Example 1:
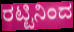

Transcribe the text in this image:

ರಟ್ಟಿನಿಂದ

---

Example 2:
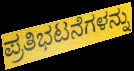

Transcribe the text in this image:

ಪ್ರತಿಭಟನೆಗಳನ್ನು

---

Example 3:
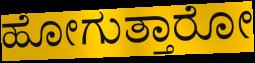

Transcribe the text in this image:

ಹೋಗುತ್ತಾರೋ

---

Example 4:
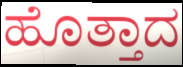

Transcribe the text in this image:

ಹೊತ್ತಾದ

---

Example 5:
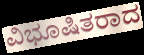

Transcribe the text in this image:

ವಿಭೂಷಿತರಾದ